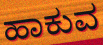
ಹಾಕುವ